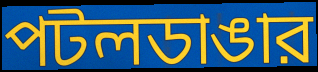
পটলডাঙার